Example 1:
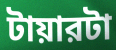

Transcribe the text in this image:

টায়ারটা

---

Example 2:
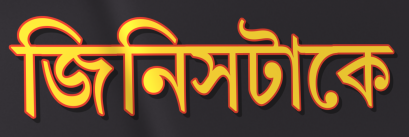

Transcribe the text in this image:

জিনিসটাকে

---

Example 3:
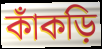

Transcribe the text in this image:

কাঁকড়ি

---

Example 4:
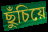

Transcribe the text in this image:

ছুঁচিয়ে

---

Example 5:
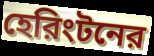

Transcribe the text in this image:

হেরিংটনের